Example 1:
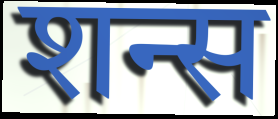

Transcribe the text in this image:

शन्स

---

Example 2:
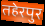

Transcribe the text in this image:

तहेरपुर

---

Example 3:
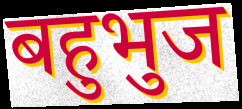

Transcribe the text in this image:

बहुभुज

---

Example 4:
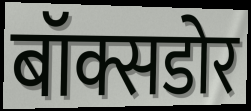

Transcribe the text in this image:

बॉक्सडोर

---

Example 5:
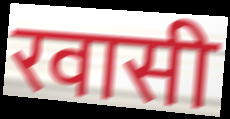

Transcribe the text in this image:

रवासी